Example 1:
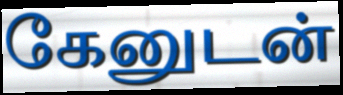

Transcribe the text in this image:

கேனுடன்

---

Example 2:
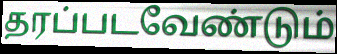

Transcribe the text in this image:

தரப்படவேண்டும்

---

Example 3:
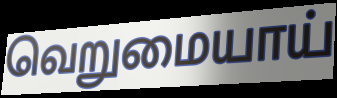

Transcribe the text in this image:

வெறுமையாய்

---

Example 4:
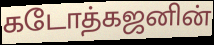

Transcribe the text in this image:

கடோத்கஜனின்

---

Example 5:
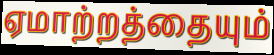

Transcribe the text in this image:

ஏமாற்றத்தையும்